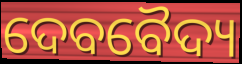
ଦେବବୈଦ୍ୟ